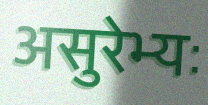
असुरेभ्यः